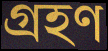
গ্রহণ